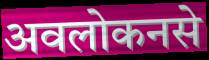
अवलोकनसे